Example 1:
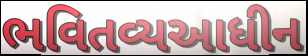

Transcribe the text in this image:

ભવિતવ્યઆધીન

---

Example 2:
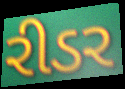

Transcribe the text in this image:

રીડર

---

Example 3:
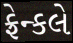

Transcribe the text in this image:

ફ્રેન્કલે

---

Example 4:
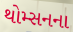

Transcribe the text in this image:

થોમ્સનના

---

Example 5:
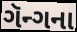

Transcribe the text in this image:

ગૅન્ગના